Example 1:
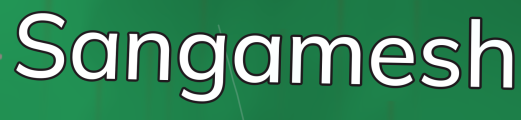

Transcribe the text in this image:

Sangamesh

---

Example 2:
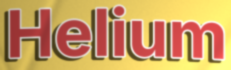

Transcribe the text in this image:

Helium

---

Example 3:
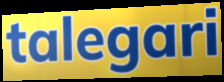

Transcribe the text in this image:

talegari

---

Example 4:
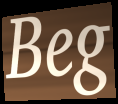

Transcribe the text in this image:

Beg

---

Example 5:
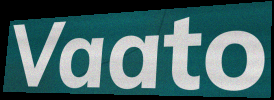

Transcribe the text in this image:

Vaato